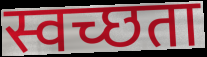
स्वच्छता